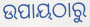
ଉପାୟଠାରୁ